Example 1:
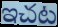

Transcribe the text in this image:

ఇచట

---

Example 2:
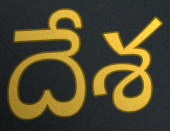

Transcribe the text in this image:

దేశ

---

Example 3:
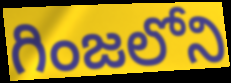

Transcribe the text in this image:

గింజలోని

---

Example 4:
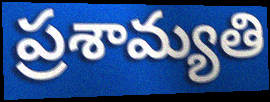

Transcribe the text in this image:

ప్రశామ్యతి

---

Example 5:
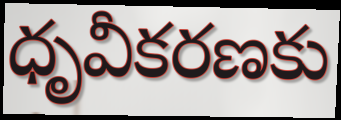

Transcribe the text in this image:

ధృవీకరణకు